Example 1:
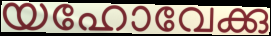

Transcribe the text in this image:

യഹോവേക്കു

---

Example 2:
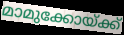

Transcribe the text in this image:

മാമുക്കോയ്ക്ക്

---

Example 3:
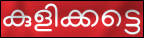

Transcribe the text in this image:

കുളിക്കട്ടെ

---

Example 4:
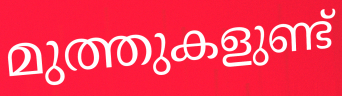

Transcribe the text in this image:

മുത്തുകളുണ്ട്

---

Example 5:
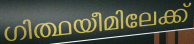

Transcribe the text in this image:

ഗിത്ഥയീമിലേക്ക്